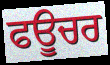
ਫਊਚਰ